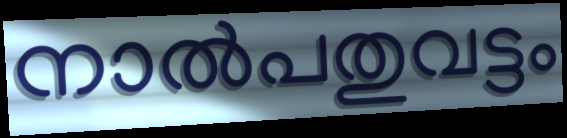
നാൽപതുവട്ടം